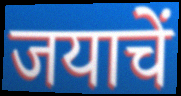
जयाचें